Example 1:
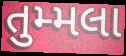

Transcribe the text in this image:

તુમ્મલા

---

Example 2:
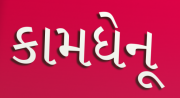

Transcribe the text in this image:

કામધેનૂ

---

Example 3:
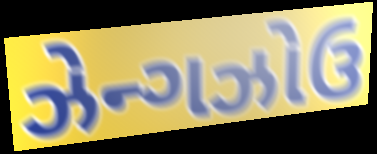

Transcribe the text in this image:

ઝેન્ગઝોઉ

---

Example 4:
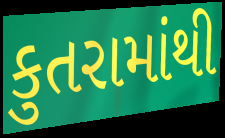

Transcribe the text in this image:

કુતરામાંથી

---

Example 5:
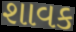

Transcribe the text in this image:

શાવક